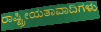
ರಾಷ್ಟ್ರೀಯತಾವಾದಿಗಳು